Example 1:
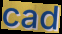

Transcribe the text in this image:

cad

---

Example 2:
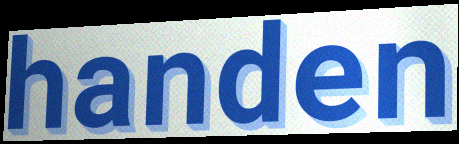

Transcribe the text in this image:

handen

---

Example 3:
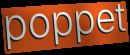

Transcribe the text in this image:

poppet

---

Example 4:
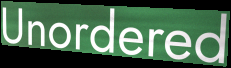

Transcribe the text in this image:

Unordered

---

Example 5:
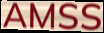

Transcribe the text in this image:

AMSS